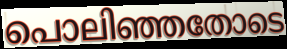
പൊലിഞ്ഞതോടെ